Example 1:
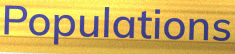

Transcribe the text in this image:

Populations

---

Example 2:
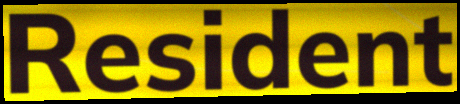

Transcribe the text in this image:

Resident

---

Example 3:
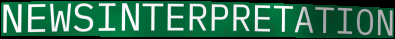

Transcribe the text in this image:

NEWSINTERPRETATION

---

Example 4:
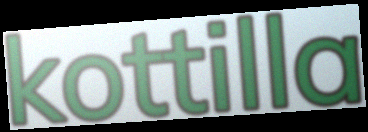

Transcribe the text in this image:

kottilla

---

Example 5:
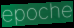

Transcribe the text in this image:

epoche